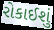
રોકાઈશું